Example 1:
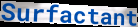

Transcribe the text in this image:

Surfactant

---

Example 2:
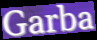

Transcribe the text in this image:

Garba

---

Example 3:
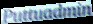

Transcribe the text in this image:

Puttuadmin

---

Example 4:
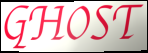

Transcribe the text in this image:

GHOST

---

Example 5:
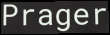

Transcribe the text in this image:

Prager